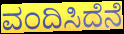
ವಂದಿಸಿದೆನೆ